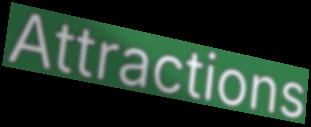
Attractions